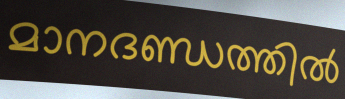
മാനദണ്ഡത്തിൽ